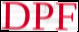
DPF